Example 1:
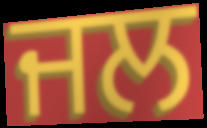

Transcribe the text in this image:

ਜਲ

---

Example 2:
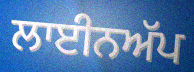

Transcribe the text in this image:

ਲਾਈਨਅੱਪ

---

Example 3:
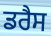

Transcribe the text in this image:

ਡਰੈਸ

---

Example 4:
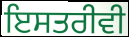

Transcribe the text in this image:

ਇਸਤਰੀਵੀ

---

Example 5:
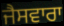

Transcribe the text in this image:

ਜੈਸਵਾਰਾ